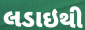
લડાઇથી